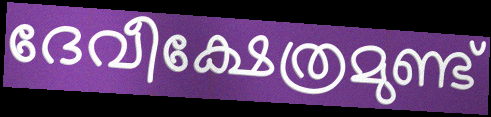
ദേവീക്ഷേത്രമുണ്ട്